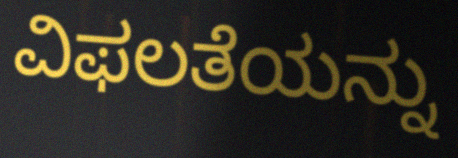
ವಿಫಲತೆಯನ್ನು